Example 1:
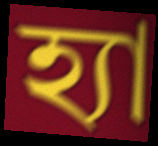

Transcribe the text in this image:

হ্যা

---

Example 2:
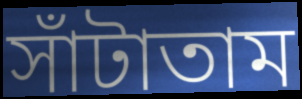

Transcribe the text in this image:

সাঁটাতাম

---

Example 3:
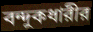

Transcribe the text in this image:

বন্দুকধারীর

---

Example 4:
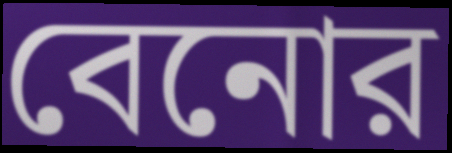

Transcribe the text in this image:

বেনোর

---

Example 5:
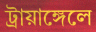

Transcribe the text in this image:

ট্রায়াঙ্গেলে